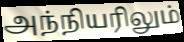
அந்நியரிலும்